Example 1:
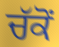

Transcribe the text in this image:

ਚੱਕੋਂ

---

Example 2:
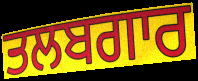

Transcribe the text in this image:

ਤਲਬਗਾਰ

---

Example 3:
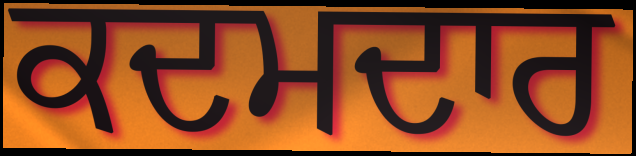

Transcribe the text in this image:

ਕਦਮਦਾਰ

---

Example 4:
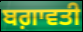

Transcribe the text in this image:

ਬਗ਼ਾਵਤੀ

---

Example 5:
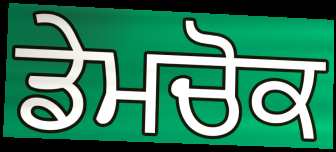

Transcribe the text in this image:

ਡੇਮਚੋਕ